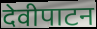
देवीपाटन